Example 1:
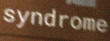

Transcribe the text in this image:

syndrome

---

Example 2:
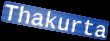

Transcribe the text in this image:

Thakurta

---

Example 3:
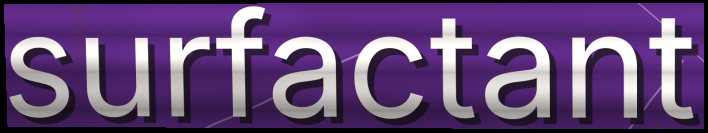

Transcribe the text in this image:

surfactant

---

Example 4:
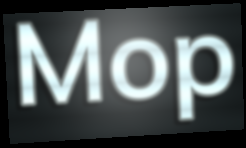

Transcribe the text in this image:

Mop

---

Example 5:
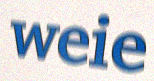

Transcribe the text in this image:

weie